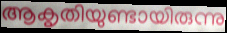
ആകൃതിയുണ്ടായിരുന്നു